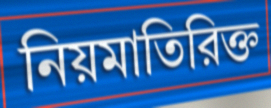
নিয়মাতিরিক্ত